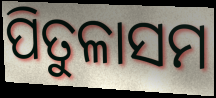
ପିତୁଳାସମ